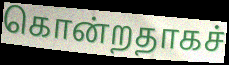
கொன்றதாகச்